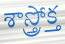
శాస్త్రోక్త